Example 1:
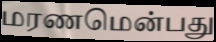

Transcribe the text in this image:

மரணமென்பது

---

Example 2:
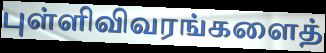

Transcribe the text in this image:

புள்ளிவிவரங்களைத்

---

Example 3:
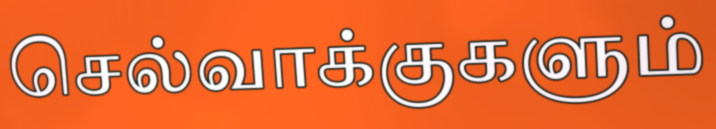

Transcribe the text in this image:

செல்வாக்குகளும்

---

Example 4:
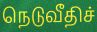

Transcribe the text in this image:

நெடுவீதிச்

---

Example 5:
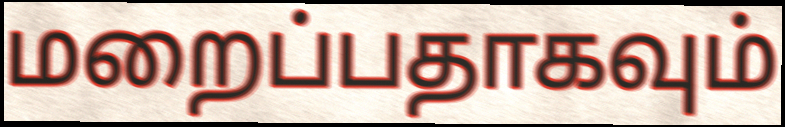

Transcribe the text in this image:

மறைப்பதாகவும்